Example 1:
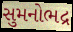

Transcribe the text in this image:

સુમનોભદ્ર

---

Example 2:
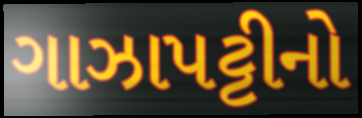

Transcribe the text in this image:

ગાઝાપટ્ટીનો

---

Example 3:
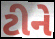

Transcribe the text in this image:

ટીને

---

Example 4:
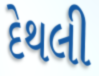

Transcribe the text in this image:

દેથલી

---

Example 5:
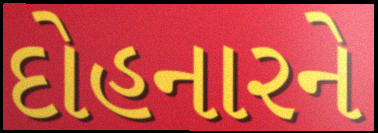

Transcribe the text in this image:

દોહનારને